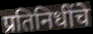
प्रतिनिधींचे